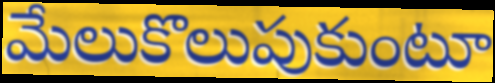
మేలుకొలుపుకుంటూ